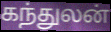
கந்துலன்